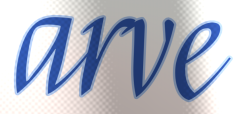
arve